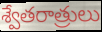
శ్వేతరాత్రులు